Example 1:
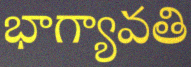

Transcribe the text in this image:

భాగ్యావతి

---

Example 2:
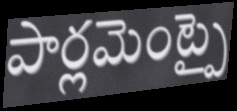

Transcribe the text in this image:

పార్లమెంట్పై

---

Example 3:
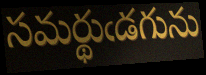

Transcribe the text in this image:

సమర్థుఁడగును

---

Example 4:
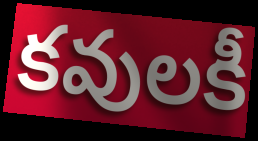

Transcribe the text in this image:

కవులకీ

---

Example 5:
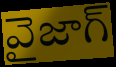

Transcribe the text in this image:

వైజాగ్